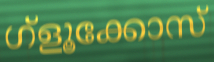
ഗ്ളൂക്കോസ്